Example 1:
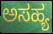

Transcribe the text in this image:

ಅಸಹ್ಯ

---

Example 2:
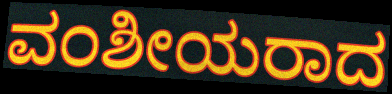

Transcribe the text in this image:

ವಂಶೀಯರಾದ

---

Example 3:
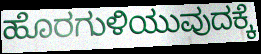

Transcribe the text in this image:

ಹೊರಗುಳಿಯುವುದಕ್ಕೆ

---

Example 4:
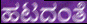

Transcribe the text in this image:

ಹಟದಂತೆ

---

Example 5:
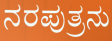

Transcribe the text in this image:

ನರಪುತ್ರನು